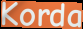
Korda